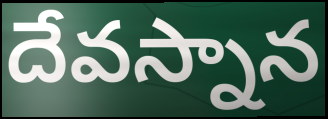
దేవస్నాన